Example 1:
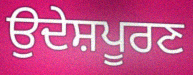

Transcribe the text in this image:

ਉਦੇਸ਼ਪੂਰਣ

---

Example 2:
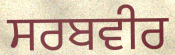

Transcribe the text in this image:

ਸਰਬਵੀਰ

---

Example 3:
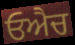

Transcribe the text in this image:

ਓਐਚ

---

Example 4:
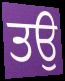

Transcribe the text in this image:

ਤਉ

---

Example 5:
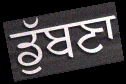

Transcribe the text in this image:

ਡੁੱਬਣਾ